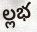
ల్లభ